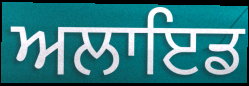
ਅਲਾਇਡ